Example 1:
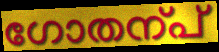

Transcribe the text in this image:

ഗോതന്പ്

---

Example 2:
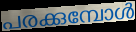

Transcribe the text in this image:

പരക്കുമ്പോൾ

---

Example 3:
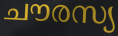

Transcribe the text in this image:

ചൗരസ്യ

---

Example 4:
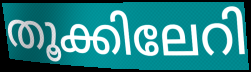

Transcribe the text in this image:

തൂക്കിലേറി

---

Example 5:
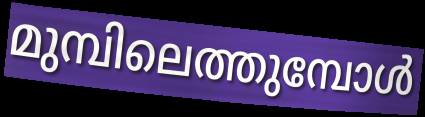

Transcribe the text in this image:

മുമ്പിലെത്തുമ്പോൾ